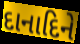
દાનાદિને